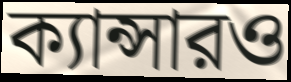
ক্যান্সারও